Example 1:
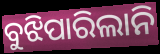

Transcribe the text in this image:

ବୁଝିପାରିଲାନି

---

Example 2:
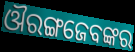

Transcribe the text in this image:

ଔରଙ୍ଗଜେବଙ୍କର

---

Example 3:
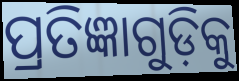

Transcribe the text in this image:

ପ୍ରତିଜ୍ଞାଗୁଡ଼ିକୁ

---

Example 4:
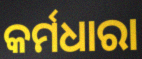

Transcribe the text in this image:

କର୍ମଧାରା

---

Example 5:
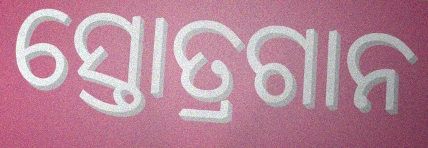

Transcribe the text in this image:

ସ୍ତୋତ୍ରଗାନ